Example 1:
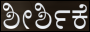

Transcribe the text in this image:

ಶೀರ್ಶಿಕೆ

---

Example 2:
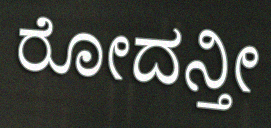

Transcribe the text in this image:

ರೋದನ್ತೀ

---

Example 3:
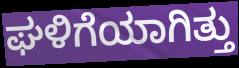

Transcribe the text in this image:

ಘಳಿಗೆಯಾಗಿತ್ತು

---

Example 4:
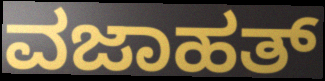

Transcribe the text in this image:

ವಜಾಹತ್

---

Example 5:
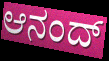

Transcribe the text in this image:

ಆನಂದ್